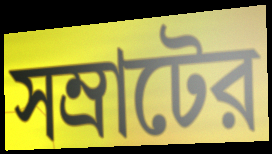
সম্রাটের